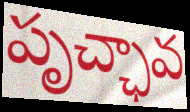
పృచ్ఛావ